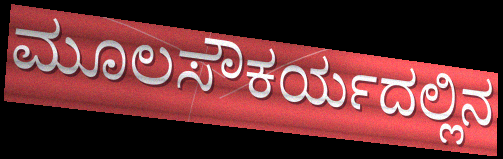
ಮೂಲಸೌಕರ್ಯದಲ್ಲಿನ